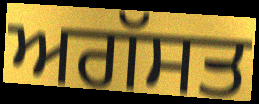
ਅਗੱਸਤ